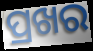
ପ୍ରଖର